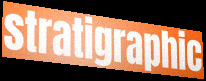
stratigraphic